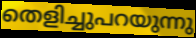
തെളിച്ചുപറയുന്നു